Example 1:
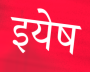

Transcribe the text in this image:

इयेष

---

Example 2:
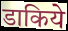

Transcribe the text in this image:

डाकिये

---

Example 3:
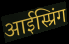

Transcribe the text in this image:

आईस्प्रिंग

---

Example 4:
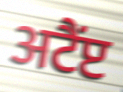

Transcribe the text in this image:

अटैंप्ट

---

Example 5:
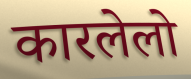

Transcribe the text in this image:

कारलेलो